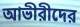
আভীরীদের